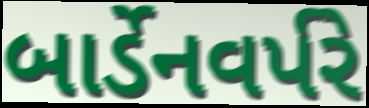
બાર્ડેનવર્પરે